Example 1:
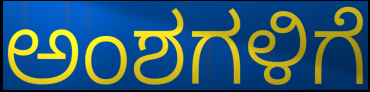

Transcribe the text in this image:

ಅಂಶಗಳಿಗೆ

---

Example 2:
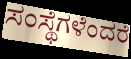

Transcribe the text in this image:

ಸಂಸ್ಥೆಗಳೆಂದರೆ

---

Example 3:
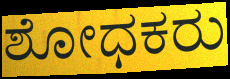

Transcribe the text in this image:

ಶೋಧಕರು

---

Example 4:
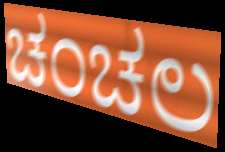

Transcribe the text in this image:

ಚಂಚಲ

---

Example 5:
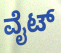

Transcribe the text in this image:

ವೈಟ್